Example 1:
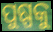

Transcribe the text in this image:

ପୁଷ୍ପକୁ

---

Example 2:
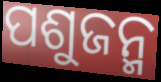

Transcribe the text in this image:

ପଶୁଜନ୍ମ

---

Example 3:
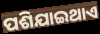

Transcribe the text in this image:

ପଶିଯାଇଥାଏ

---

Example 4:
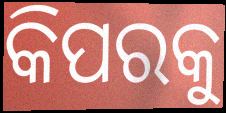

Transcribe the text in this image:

କିପରକୁ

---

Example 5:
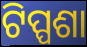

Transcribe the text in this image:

ଟିପ୍ପଶା